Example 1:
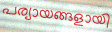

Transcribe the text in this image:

പര്യായങ്ങളായി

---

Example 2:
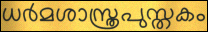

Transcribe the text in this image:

ധർമശാസ്ത്രപുസ്തകം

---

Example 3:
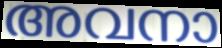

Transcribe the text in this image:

അവനാ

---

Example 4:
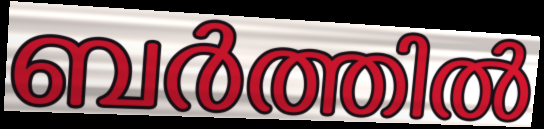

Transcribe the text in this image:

ബർത്തിൽ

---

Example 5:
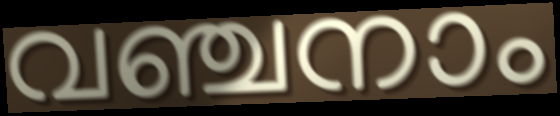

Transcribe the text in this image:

വഞ്ചനാം